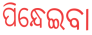
ପିନ୍ଧେଇବା